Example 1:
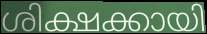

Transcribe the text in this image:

ശിക്ഷക്കായി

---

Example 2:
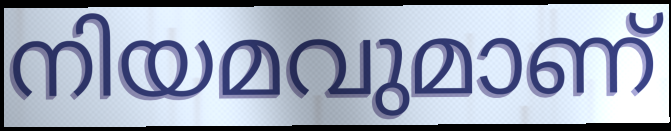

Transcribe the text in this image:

നിയമവുമാണ്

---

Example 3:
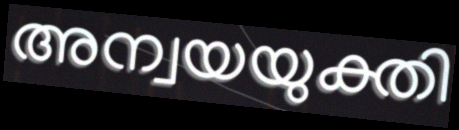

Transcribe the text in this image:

അന്വയയുക്തി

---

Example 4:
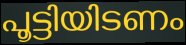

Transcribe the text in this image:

പൂട്ടിയിടണം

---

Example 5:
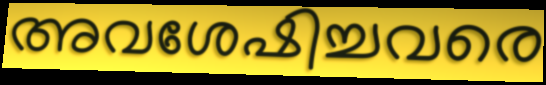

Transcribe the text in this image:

അവശേഷിച്ചവരെ